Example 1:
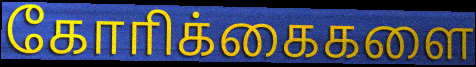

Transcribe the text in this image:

கோரிக்கைகளை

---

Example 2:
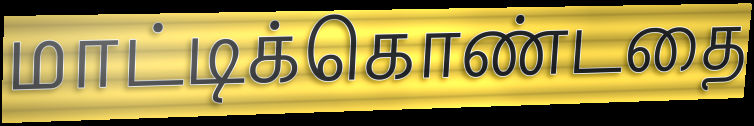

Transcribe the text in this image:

மாட்டிக்கொண்டதை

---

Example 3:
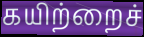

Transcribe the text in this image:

கயிற்றைச்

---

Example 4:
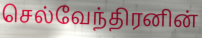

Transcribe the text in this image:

செல்வேந்திரனின்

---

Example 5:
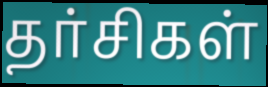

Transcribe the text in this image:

தர்சிகள்